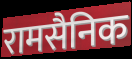
रामसैनिक